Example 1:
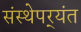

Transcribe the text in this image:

संस्थेपर्यंत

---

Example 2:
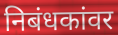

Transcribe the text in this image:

निबंधकांवर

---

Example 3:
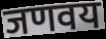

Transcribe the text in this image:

जणवय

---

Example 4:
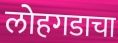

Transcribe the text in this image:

लोहगडाचा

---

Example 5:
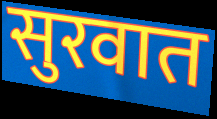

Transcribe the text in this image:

सुरवात